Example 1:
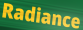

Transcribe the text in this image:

Radiance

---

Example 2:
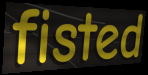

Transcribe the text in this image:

fisted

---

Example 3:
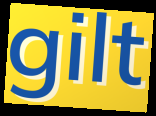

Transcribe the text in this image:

gilt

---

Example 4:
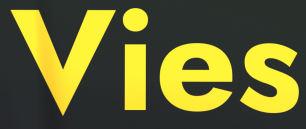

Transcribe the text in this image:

Vies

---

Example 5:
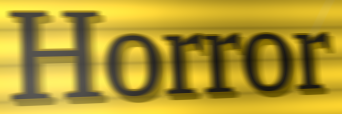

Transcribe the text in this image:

Horror